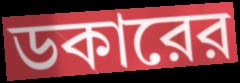
ডকারের